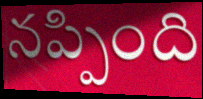
నప్పింది